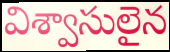
విశ్వాసులైన